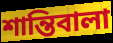
শান্তিবালা